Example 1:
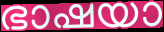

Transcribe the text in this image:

ഭാഷയാ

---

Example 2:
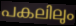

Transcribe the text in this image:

പകലിലും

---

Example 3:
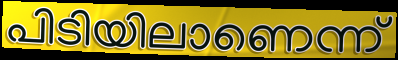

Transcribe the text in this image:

പിടിയിലാണെന്ന്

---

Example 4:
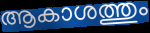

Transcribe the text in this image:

ആകാശത്തും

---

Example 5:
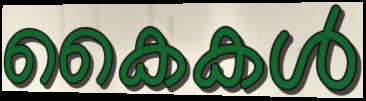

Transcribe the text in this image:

കൈകൾ